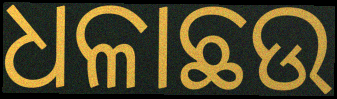
ଧଳାଛଉ